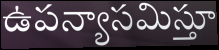
ఉపన్యాసమిస్తూ